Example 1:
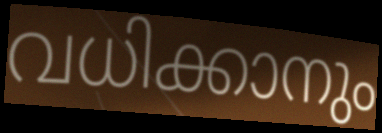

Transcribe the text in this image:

വധിക്കാനും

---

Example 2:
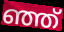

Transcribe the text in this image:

ഞ്ഞ്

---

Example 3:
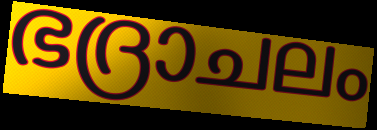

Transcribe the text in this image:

ഭദ്രാചലം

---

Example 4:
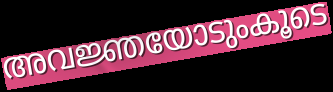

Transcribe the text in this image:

അവജ്ഞയോടുംകൂടെ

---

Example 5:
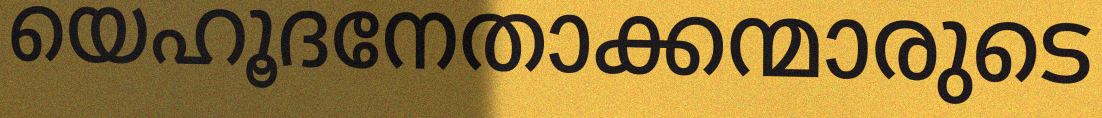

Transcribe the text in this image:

യെഹൂദനേതാക്കന്മാരുടെ